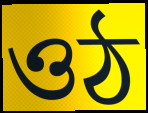
ওঠ